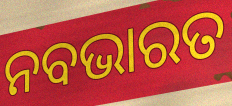
ନବଭାରତ